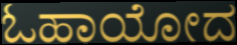
ಓಹಾಯೋದ